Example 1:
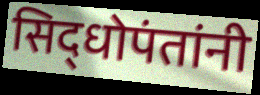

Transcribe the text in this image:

सिद्धोपंतांनी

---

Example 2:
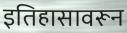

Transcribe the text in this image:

इतिहासावरून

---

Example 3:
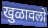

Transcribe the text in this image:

खुळावलो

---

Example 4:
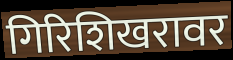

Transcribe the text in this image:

गिरिशिखरावर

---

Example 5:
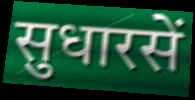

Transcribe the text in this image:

सुधारसें